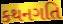
કથનગતિ